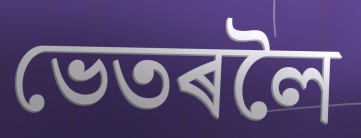
ভেতৰলৈ